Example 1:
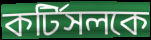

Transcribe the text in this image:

কর্টিসলকে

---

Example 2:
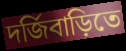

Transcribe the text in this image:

দর্জিবাড়িতে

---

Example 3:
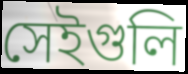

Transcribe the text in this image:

সেইগুলি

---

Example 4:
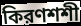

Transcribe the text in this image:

কিরণশশী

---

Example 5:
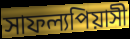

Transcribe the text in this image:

সাফল্যপিয়াসী